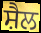
ਸ਼ੈਲ